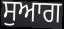
ਸੁਆਗ